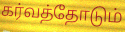
கர்வத்தோடும்